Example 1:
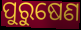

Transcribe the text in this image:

ପୁରୁଷେଣ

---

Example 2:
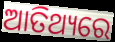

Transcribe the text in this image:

ଆତିଥ୍ୟରେ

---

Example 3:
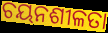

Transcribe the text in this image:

ଚୟନଶୀଳତା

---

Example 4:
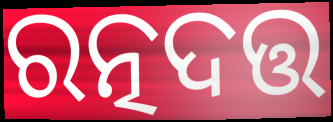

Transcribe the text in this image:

ରତ୍ନଦତ୍ତ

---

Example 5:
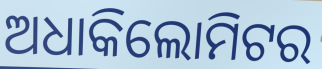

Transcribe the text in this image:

ଅଧାକିଲୋମିଟର